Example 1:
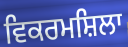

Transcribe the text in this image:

ਵਿਕਰਮਸ਼ਿਲਾ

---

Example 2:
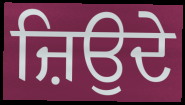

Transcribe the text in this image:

ਜ਼ਿਉਦੇ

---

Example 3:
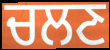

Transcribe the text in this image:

ਚਲਣ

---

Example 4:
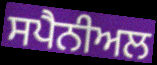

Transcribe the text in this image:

ਸਪੈਨੀਅਲ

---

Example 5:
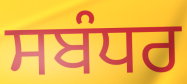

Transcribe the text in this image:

ਸਬੰਧਰ